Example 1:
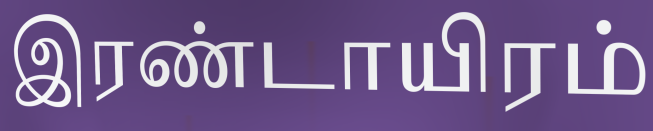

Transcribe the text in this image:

இரண்டாயிரம்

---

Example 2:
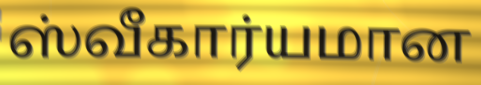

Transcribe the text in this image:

ஸ்வீகார்யமான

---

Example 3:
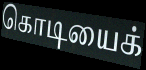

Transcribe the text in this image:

கொடியைக்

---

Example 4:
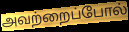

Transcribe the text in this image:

அவற்றைப்போல்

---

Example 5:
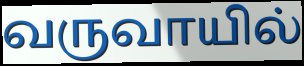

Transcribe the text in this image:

வருவாயில்